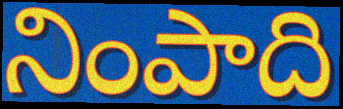
నింపాది